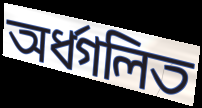
অর্ধগলিত